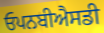
ਓਪਨਬੀਐਸਡੀ